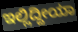
ಇಲ್ಲಿದ್ದೀಯಾ